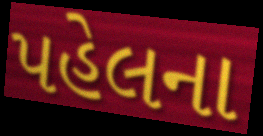
પહેલના